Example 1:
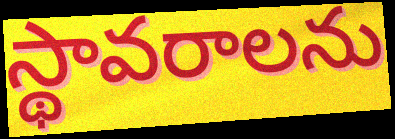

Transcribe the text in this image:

స్థావరాలను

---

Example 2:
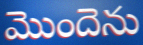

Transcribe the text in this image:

మొందెను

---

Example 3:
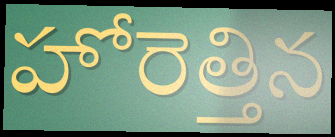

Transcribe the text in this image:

హోరెత్తిన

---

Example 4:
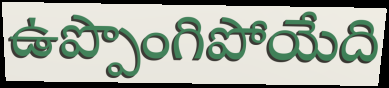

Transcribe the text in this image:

ఉప్పొంగిపోయేది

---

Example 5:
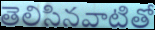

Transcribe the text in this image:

తెలిసినవాటితో